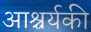
आश्चर्यकी